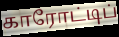
காரோட்டிப்